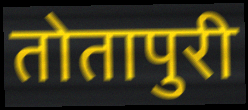
तोतापुरी